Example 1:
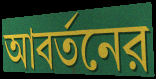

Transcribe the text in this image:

আবর্তনের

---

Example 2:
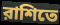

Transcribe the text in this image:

রাশিতে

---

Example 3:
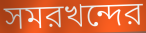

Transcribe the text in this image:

সমরখন্দের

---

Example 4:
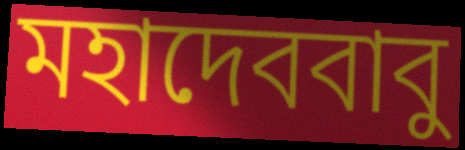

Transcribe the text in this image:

মহাদেববাবু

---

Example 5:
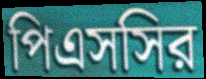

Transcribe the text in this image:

পিএসসির